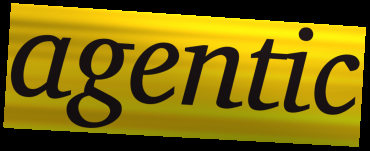
agentic